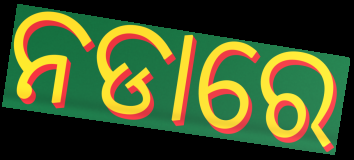
ନଡାରେ